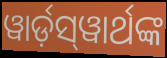
ୱାର୍ଡ଼ସ୍‌ୱାର୍ଥଙ୍କ